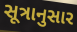
સૂત્રાનુસાર